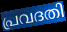
പ്രവദതി